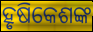
ହୃଷିକେଶଙ୍କ